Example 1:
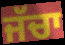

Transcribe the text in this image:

ਜੱਚਾ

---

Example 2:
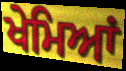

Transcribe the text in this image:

ਖੇਮਿਆਂ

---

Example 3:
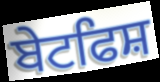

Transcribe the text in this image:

ਬੇਟਫਿਸ਼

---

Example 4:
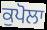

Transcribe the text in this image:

ਕੁਪੋਲਾ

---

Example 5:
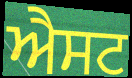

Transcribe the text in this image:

ਐਸਟ